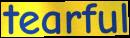
tearful